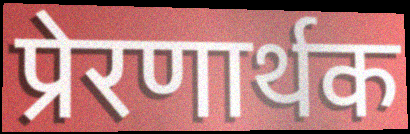
प्रेरणार्थक